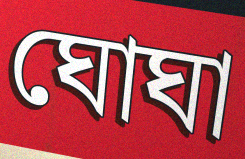
ঘোঘা